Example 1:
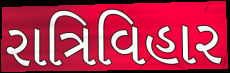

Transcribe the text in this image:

રાત્રિવિહાર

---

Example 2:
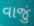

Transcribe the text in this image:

વાજું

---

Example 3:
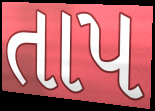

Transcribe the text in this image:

તાપ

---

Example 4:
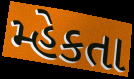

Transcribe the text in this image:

મ્હેકતા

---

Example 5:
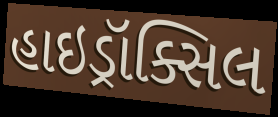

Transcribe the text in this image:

હાઇડ્રૉક્સિલ